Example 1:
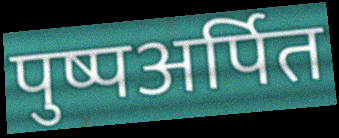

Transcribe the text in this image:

पुष्पअर्पित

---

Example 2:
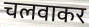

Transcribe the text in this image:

चलवाकर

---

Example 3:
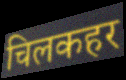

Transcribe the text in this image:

चिलकहर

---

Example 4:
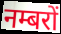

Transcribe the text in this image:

नम्बरों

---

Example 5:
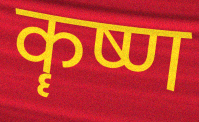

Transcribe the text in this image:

कॄष्ण